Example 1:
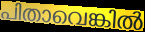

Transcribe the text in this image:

പിതാവെങ്കിൽ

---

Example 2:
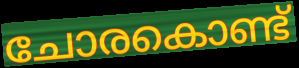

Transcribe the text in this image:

ചോരകൊണ്ട്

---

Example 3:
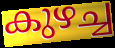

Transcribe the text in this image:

കുഴച്ച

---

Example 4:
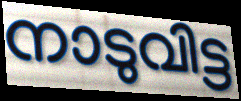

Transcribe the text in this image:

നാടുവിട്ട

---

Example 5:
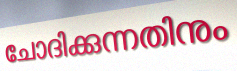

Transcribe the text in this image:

ചോദിക്കുന്നതിനും